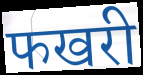
फखरी